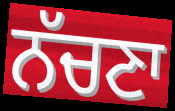
ਨੱਚਣਾ